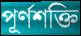
পূর্ণশক্তি